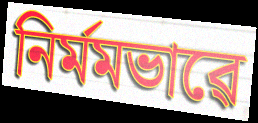
নিৰ্মমভাৱে